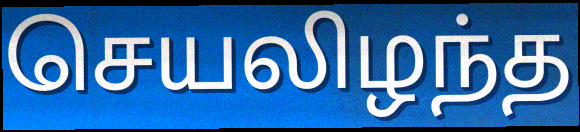
செயலிழந்த